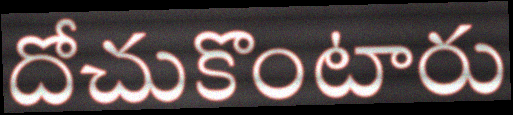
దోచుకొంటారు